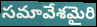
సమావేశమైరి